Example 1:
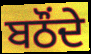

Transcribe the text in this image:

ਬਠੌਂਦੇ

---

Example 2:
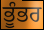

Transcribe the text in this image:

ਭੂੰਭਰ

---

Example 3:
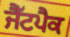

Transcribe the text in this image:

ਜੈੱਟਪੈਕ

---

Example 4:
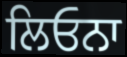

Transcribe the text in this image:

ਲਿਓਨਾ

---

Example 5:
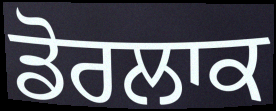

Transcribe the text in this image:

ਡੋਰਲਾਕ